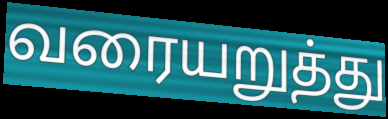
வரையறுத்து